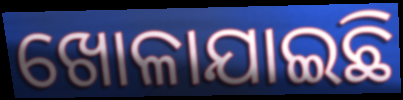
ଖୋଳାଯାଇଛି